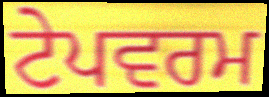
ਟੇਪਵਰਮ